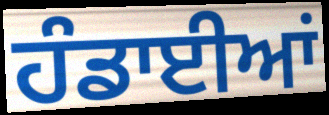
ਹੰਡਾਈਆਂ